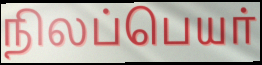
நிலப்பெயர்